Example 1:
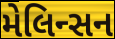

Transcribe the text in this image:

મેલિન્સન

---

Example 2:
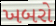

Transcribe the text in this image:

ખબરો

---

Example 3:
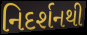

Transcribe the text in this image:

નિદર્શનથી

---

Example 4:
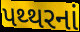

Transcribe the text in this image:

પથ્થરનાં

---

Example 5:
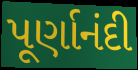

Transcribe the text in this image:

પૂર્ણાનંદી